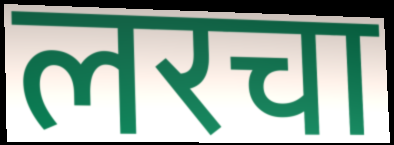
लरचा